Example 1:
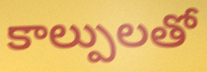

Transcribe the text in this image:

కాల్పులతో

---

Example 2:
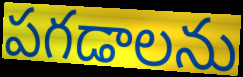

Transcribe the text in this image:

పగడాలను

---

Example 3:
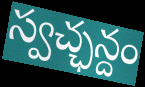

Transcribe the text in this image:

స్వచ్ఛన్దం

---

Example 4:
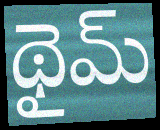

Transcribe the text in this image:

థైమ్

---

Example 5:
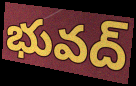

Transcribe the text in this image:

భువద్